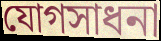
যোগসাধনা